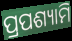
ପ୍ରପଶ୍ୟାମି